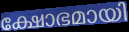
ക്ഷോഭമായി